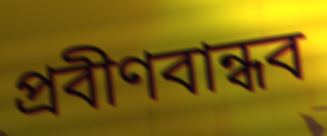
প্রবীণবান্ধব